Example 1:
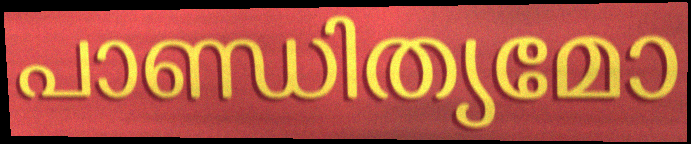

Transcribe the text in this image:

പാണ്ഡിത്യമോ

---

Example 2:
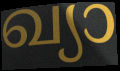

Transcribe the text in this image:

ഖ്യാ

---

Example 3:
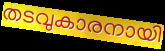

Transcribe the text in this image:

തടവുകാരനായി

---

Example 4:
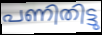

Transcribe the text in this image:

പണിതിട്ടു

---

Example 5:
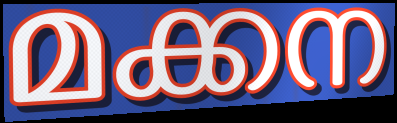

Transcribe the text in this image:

മക്കന